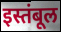
इस्तंबूल